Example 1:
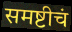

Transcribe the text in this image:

समष्टीचं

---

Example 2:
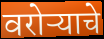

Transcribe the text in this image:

वरोऱ्याचे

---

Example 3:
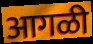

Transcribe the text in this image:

आगळी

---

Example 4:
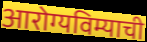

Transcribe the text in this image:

आरोग्यविम्याची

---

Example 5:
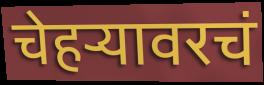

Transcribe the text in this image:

चेहऱ्यावरचं